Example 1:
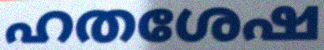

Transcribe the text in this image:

ഹതശേഷ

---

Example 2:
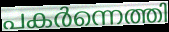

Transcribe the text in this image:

പകർന്നെത്തി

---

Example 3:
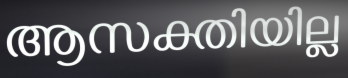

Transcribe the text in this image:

ആസക്തിയില്ല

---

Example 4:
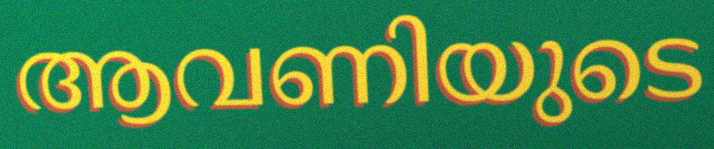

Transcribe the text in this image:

ആവണിയുടെ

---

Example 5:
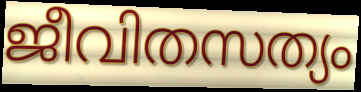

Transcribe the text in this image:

ജീവിതസത്യം